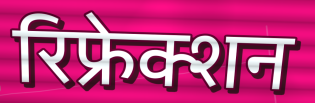
रिफ्रेक्शन